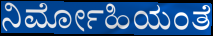
ನಿರ್ಮೋಹಿಯಂತೆ